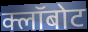
क्लॉबोट